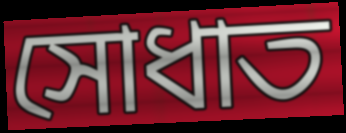
সোধাত